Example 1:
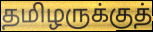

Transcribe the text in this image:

தமிழருக்குத்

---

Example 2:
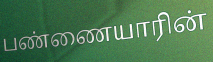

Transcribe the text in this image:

பண்ணையாரின்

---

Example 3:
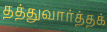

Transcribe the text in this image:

தத்துவார்த்தக்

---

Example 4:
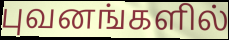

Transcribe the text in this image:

புவனங்களில்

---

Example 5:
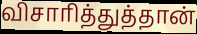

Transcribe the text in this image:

விசாரித்துத்தான்